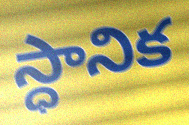
స్ధానిక